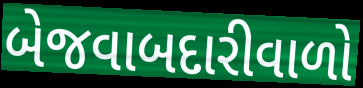
બેજવાબદારીવાળો